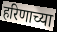
हरिणाच्या